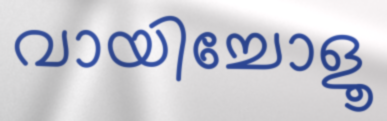
വായിച്ചോളൂ